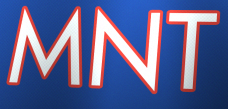
MNT